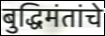
बुद्धिमंतांचे